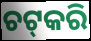
ଚଟ୍‌କରି